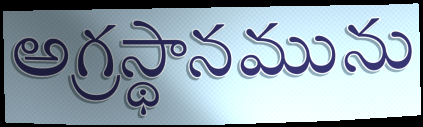
అగ్రస్థానమును